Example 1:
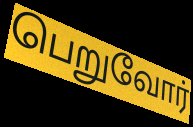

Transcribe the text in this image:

பெறுவோர்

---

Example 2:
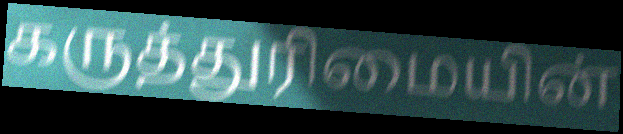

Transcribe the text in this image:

கருத்துரிமையின்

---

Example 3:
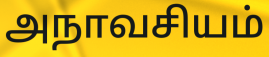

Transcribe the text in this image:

அநாவசியம்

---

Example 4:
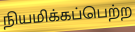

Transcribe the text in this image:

நியமிக்கப்பெற்ற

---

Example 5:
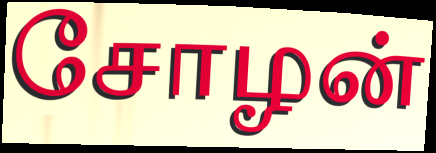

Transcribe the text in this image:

சோழன்